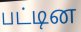
பட்டின